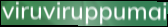
viruviruppumai